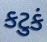
કટુકં